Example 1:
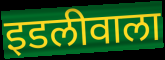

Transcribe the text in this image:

इडलीवाला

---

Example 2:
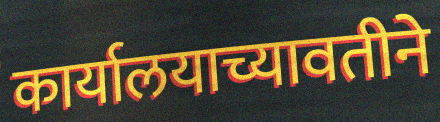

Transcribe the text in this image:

कार्यालयाच्यावतीने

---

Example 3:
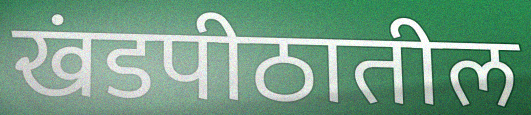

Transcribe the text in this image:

खंडपीठातील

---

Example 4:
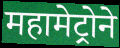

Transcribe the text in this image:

महामेट्रोने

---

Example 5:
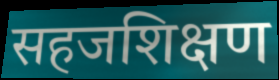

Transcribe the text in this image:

सहजशिक्षण